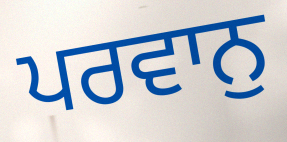
ਪਰਵਾਨੁ